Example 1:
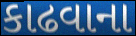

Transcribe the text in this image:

કાઢવાના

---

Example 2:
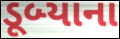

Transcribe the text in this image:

ડૂબ્યાના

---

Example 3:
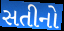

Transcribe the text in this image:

સતીનો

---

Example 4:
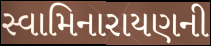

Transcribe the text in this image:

સ્વામિનારાયણની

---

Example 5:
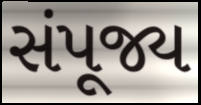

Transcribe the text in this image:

સંપૂજ્ય